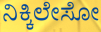
ನಿಕ್ಕಿಲೇಸೋ